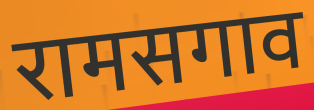
रामसगाव